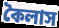
কৈলাস